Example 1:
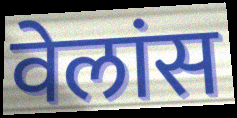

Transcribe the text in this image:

वेलांस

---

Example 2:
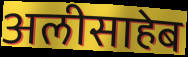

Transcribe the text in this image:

अलीसाहेब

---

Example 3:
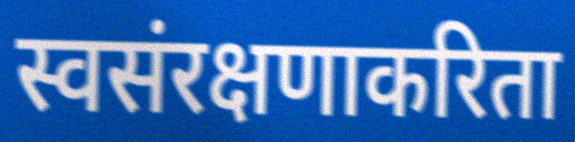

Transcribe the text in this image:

स्वसंरक्षणाकरिता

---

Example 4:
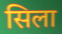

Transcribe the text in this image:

सिला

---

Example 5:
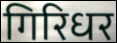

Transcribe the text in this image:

गिरिधर